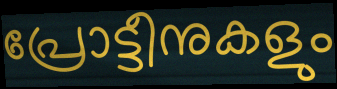
പ്രോട്ടീനുകളും